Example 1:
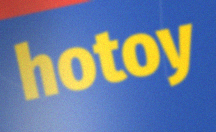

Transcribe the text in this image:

hotoy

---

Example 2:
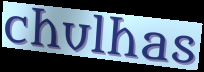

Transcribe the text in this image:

chulhas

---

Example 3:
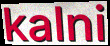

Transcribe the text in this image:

kalni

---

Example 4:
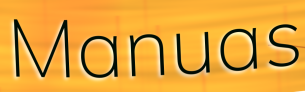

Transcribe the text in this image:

Manuas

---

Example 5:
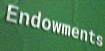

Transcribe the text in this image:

Endowments